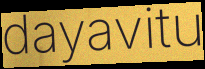
dayavitu